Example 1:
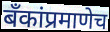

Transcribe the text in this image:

बॅंकांप्रमाणेच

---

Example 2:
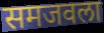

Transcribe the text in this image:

समजवला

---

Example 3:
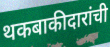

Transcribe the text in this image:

थकबाकीदारांची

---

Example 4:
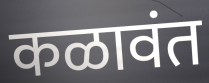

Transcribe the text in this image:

कळावंत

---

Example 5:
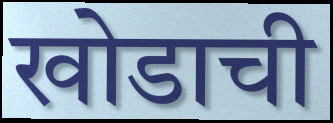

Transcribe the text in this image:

खोडाची